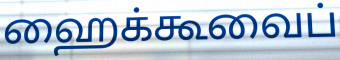
ஹைக்கூவைப்